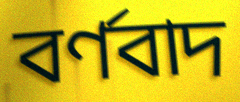
বর্ণবাদ